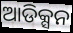
ଆଡିକ୍ସନ